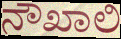
ನೌಖಾಲಿ